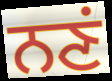
ਨਣਂ